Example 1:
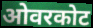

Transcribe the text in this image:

ओवरकोट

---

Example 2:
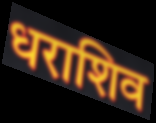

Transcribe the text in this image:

धराशिव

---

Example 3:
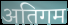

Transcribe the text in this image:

अतिगम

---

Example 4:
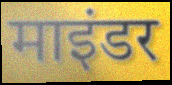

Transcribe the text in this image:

माइंडर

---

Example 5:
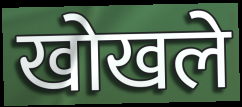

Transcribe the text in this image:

खोखले